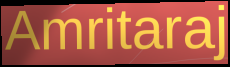
Amritaraj